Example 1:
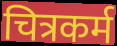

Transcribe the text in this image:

चित्रकर्म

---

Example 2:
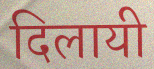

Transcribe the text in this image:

दिलायी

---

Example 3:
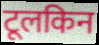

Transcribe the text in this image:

टूलकिन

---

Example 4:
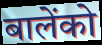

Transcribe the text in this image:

बालेंको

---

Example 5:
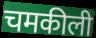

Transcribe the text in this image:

चमकीली